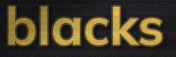
blacks